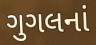
ગુગલનાં